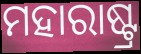
ମହାରାଷ୍ଟ୍ର